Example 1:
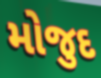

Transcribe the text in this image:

મોજુદ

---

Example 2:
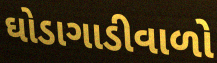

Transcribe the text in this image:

ઘોડાગાડીવાળો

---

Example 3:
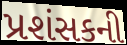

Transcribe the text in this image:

પ્રશંસકની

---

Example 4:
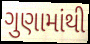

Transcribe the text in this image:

ગુણામાંથી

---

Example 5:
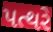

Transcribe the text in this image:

પત્થરે